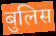
बुलिस